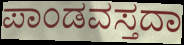
ಪಾಂಡವಸ್ತದಾ